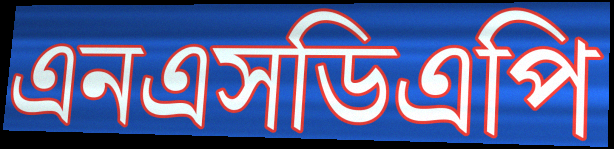
এনএসডিএপি